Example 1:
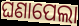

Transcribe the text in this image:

ଘଣାପେଲା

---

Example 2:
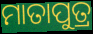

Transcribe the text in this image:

ମାତାପୁତ୍ର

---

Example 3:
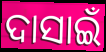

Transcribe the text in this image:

ଦାସାଇଁ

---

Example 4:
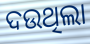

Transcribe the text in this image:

ଦଉଥିଲା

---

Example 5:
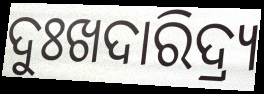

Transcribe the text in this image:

ଦୁଃଖଦାରିଦ୍ର୍ୟ